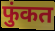
फुंकत